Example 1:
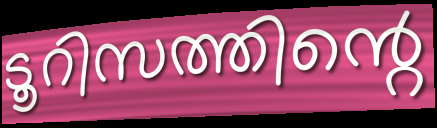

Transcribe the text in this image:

ടൂറിസത്തിന്റെ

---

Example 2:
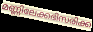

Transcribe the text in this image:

മണ്ണിലേക്കഭിസരിക്ക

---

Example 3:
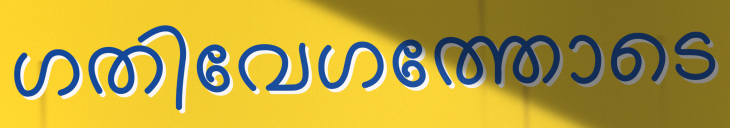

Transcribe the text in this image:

ഗതിവേഗത്തോടെ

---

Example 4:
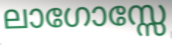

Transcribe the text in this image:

ലാഗോസ്സേ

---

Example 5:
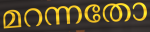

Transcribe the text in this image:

മറന്നതോ